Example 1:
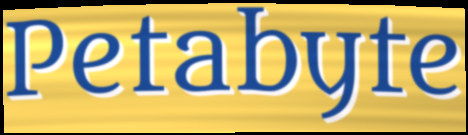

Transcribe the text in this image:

Petabyte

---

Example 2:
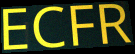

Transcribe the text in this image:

ECFR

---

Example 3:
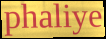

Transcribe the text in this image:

phaliye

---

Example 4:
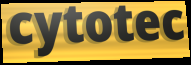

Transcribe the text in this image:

cytotec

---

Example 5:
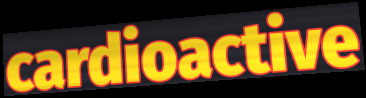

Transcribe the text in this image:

cardioactive